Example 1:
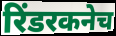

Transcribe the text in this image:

रिंडरकनेच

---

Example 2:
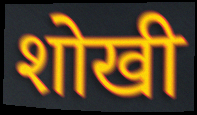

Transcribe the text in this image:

शोखी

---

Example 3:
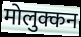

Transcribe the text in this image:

मोलुक्कन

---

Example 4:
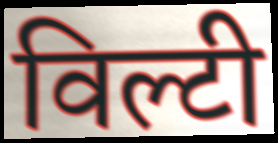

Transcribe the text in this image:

विल्टी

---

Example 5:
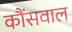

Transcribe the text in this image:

कौंसवाल